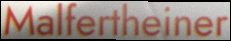
Malfertheiner